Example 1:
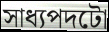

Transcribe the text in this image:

সাধ্যপদটো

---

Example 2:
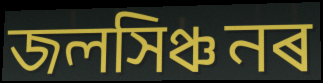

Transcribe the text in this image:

জলসিঞ্চনৰ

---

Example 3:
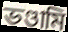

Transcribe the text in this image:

ভণ্ডামি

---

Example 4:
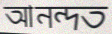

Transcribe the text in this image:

আনন্দত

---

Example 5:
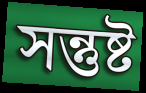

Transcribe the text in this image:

সন্তুষ্ট